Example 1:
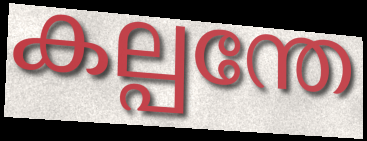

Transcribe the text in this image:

കല്പന്തേ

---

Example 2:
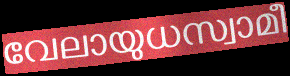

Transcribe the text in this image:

വേലായുധസ്വാമീ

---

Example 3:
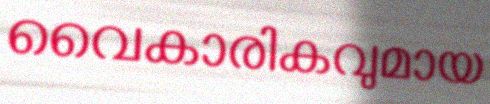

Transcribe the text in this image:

വൈകാരികവുമായ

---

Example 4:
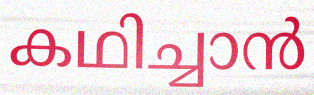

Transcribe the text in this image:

കഥിച്ചാൻ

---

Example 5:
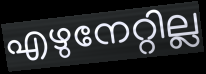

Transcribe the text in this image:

എഴുനേറ്റില്ല